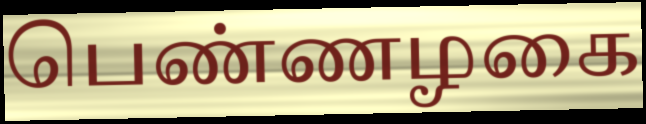
பெண்ணழகை